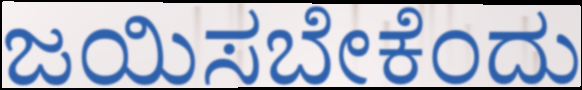
ಜಯಿಸಬೇಕೆಂದು